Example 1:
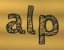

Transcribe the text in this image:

alp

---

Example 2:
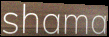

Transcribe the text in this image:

shama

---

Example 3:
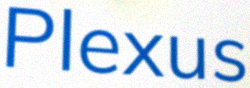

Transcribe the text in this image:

Plexus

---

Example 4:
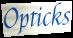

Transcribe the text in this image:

Opticks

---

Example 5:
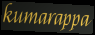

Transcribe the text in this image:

kumarappa